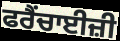
ਫਰੈਂਚਾਈਜ਼ੀ